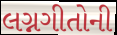
લગ્નગીતોની